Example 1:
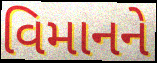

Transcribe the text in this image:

વિમાનને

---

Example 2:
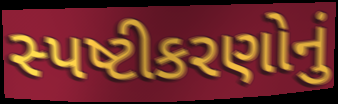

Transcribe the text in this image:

સ્પષ્ટીકરણોનું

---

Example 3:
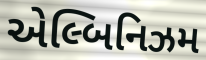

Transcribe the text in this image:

એલ્બિનિઝમ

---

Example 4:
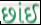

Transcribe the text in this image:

છાંઈ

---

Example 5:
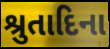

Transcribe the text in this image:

શ્રુતાદિના